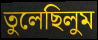
তুলেছিলুম